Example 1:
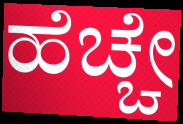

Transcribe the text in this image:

ಹೆಚ್ಚೇ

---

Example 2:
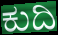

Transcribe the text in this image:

ಕುದಿ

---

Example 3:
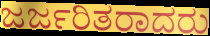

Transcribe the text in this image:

ಜರ್ಜರಿತರಾದರು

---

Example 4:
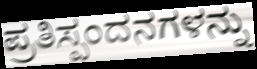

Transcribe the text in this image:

ಪ್ರತಿಸ್ಪಂದನಗಳನ್ನು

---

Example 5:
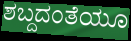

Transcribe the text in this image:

ಶಬ್ದದಂತೆಯೂ